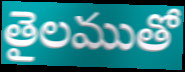
తైలముతో